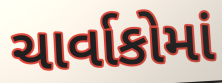
ચાર્વાકોમાં